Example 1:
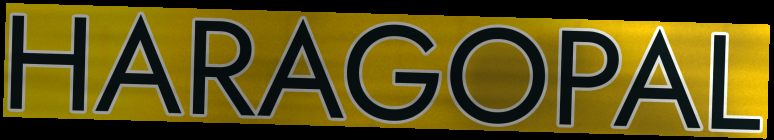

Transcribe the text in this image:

HARAGOPAL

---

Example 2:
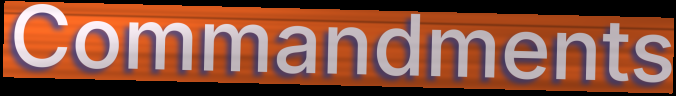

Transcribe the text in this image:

Commandments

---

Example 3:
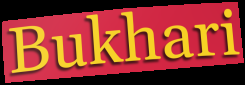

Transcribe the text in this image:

Bukhari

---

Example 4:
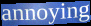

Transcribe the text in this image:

annoying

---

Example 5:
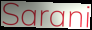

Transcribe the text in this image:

Sarani